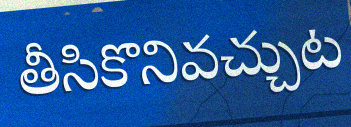
తీసికొనివచ్చుట